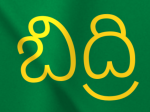
బిద్రి